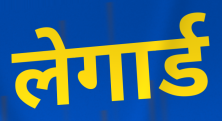
लेगार्ड